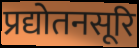
प्रद्योतनसूरि